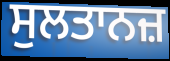
ਸੁਲਤਾਨਜ਼